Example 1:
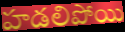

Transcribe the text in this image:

హడలిపోయి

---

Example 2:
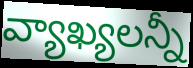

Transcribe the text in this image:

వ్యాఖ్యలన్నీ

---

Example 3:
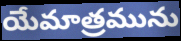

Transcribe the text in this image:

యేమాత్రమును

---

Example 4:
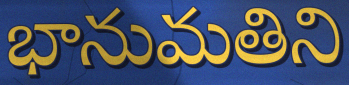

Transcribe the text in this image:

భానుమతిని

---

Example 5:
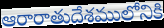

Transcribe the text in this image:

ఆరారాతుదేశములోనికి